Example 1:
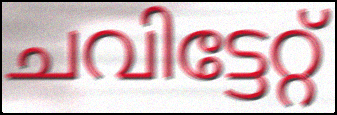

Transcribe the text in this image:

ചവിട്ടേറ്റ്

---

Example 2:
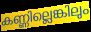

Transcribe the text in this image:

കണ്ണില്ലെങ്കിലും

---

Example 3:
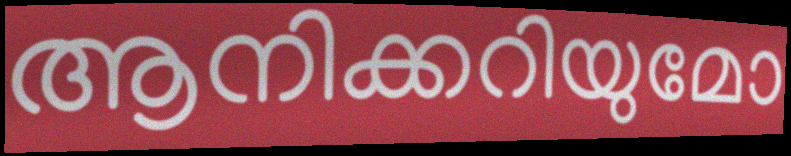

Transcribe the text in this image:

ആനിക്കറിയുമോ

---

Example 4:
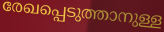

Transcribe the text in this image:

രേഖപ്പെടുത്താനുള്ള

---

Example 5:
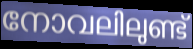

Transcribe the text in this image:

നോവലിലുണ്ട്